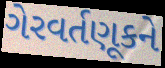
ગેરવર્તણૂકને